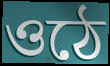
ওঠে